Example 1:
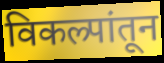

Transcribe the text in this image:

विकल्पांतून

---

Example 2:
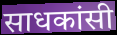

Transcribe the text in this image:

साधकांसी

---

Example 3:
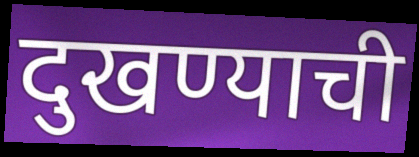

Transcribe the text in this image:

दुखण्याची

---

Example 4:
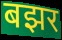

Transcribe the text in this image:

बझर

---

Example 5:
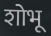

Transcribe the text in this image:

शोभू